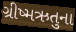
ગ્રીષ્મઋતુના